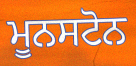
ਮੂਨਸਟੋਨ